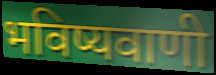
भविष्यवाणी